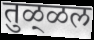
तुळ्‌ळल